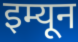
इम्‍यून